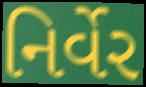
નિર્વેર